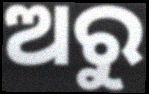
ଅରୁ